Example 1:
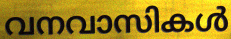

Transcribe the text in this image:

വനവാസികൾ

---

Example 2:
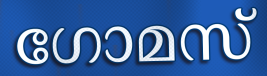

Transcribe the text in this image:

ഗോമസ്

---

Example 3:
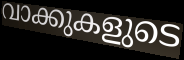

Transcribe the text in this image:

വാക്കുകളുടെ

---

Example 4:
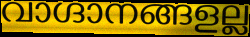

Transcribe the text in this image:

വാഗ്ദാനങ്ങളല്ല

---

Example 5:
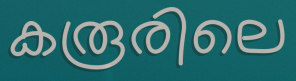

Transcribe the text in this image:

കരൂരിലെ